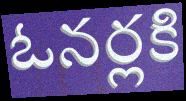
ఓనర్లకి